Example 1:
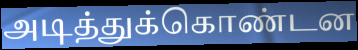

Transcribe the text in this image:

அடித்துக்கொண்டன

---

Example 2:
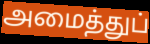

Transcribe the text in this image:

அமைத்துப்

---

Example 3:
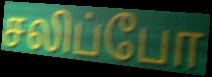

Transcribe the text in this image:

சலிப்போ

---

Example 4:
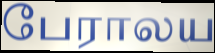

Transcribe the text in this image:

பேராலய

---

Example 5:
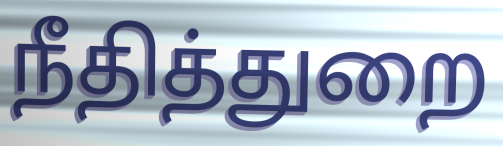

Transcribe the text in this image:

நீதித்துறை